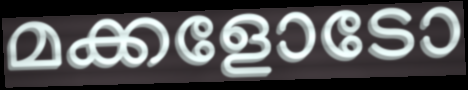
മക്കളോടോ